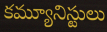
కమ్యూనిస్టులు